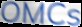
OMCs